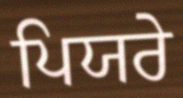
ਪਿਯਰੇ